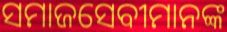
ସମାଜସେବୀମାନଙ୍କ